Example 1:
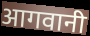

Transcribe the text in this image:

आगवानी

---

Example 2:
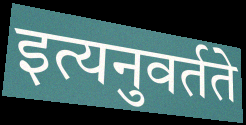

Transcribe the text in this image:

इत्यनुवर्तते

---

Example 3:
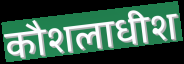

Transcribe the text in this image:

कौशलाधीश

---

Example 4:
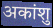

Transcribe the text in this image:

अकांशु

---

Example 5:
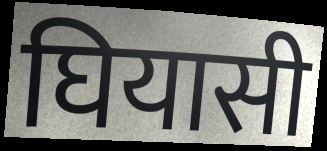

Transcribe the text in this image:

घियासी